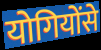
योगियोंसे